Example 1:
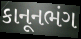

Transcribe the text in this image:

કાનૂનભંગ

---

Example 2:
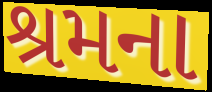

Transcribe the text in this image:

શ્રમના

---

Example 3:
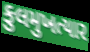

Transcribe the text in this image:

કુલમુખત્યાર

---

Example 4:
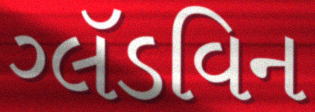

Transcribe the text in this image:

ગ્લૅડવિન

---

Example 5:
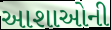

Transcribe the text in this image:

આશાઓની